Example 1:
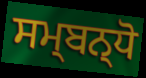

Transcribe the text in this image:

ਸਮ੍ਬਨ੍ਧੋ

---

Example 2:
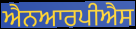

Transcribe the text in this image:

ਐਨਆਰਪੀਐਸ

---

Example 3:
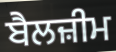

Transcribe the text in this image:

ਬੈਲਜ਼ੀਮ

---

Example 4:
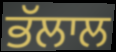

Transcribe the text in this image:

ਭੱਲਾਲ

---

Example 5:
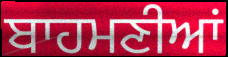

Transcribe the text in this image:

ਬਾਹਮਣੀਆਂ